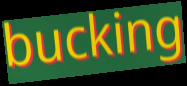
bucking